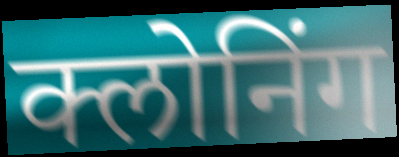
क्लोनिंग